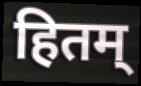
हितम्